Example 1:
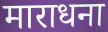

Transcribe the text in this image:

माराधना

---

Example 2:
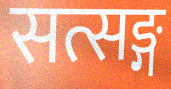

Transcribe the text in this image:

सत्सङ्ग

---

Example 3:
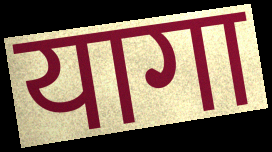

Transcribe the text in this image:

यागा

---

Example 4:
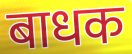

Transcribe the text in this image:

बाधक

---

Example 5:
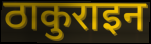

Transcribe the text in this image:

ठाकुराइन